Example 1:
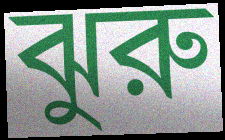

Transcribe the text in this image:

ঝুরু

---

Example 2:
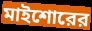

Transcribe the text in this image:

মাইশোরের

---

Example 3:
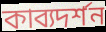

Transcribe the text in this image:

কাব্যদর্শন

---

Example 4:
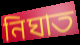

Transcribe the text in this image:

নিঘাত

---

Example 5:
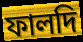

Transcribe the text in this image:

ফালদি